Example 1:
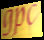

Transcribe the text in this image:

gpc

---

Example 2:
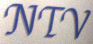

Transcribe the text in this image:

NTV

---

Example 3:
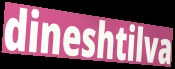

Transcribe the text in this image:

dineshtilva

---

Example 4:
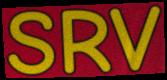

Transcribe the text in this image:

SRV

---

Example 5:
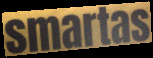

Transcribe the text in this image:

smartas